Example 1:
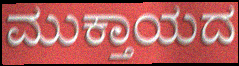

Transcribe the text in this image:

ಮುಕ್ತಾಯದ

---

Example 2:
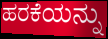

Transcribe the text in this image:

ಹರಕೆಯನ್ನು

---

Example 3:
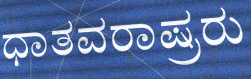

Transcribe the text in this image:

ಧಾತವರಾಷ್ರರು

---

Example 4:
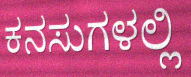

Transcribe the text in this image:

ಕನಸುಗಳಲ್ಲಿ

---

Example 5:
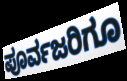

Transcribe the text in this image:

ಪೂರ್ವಜರಿಗೂ